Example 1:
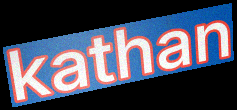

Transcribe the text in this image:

kathan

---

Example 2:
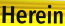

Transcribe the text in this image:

Herein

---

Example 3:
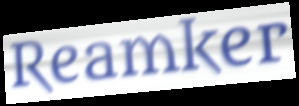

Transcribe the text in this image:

Reamker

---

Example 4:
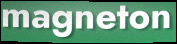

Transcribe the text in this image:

magneton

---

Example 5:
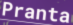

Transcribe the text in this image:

Pranta